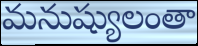
మనుష్యులంతా